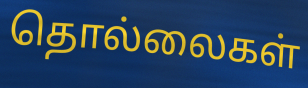
தொல்லைகள்